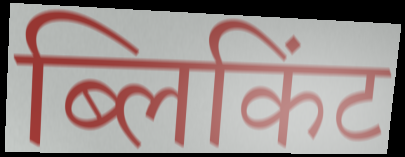
ब्लिकिंट